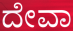
ದೇವಾ